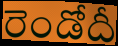
రెండోదీ